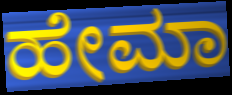
ಹೇಮಾ